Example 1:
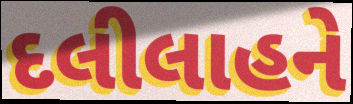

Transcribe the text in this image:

દલીલાહને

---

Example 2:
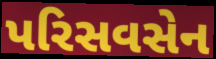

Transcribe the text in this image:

પરિસવસેન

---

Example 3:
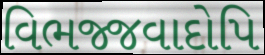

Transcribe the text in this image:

વિભજ્જવાદોપિ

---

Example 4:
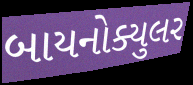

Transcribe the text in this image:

બાયનોક્યુલર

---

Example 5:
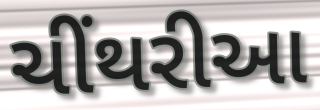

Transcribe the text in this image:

ચીંથરીઆ